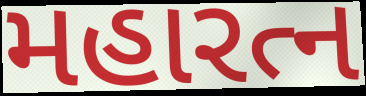
મહારત્ન